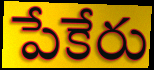
పేకేరు